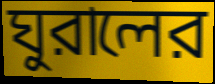
ঘুরালের